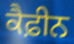
ਕੈਫ਼ੀਨ